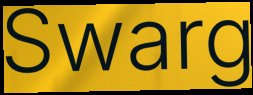
Swarg